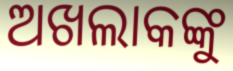
ଅଖଲାକଙ୍କୁ